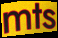
mts